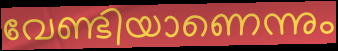
വേണ്ടിയാണെന്നും